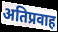
अतिप्रवाह